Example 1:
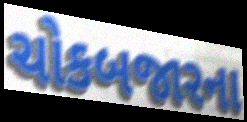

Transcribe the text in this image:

ચોકબજારના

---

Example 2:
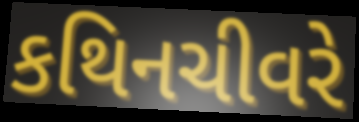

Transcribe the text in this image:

કથિનચીવરે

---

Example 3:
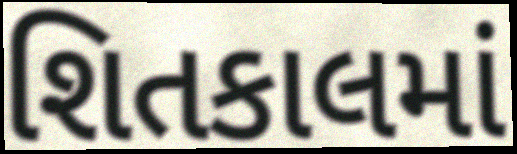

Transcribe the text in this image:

શિતકાલમાં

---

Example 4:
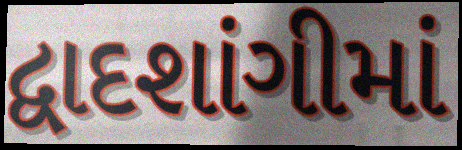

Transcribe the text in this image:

દ્વાદશાંગીમાં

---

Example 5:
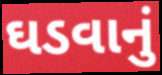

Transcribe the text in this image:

ઘડવાનું